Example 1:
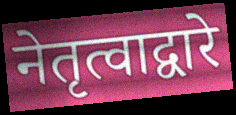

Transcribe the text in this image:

नेतृत्वाद्वारे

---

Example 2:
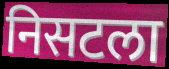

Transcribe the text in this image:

निसटला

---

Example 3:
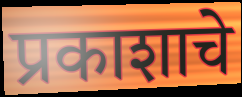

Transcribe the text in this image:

प्रकाशाचे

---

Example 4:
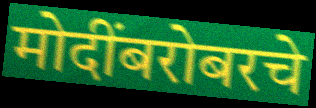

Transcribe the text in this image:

मोदींबरोबरचे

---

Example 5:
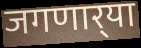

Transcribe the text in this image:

जगणार्‍या